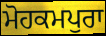
ਮੋਹਕਮਪੁਰਾ